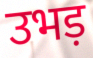
उभड़